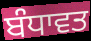
ਬੰਧਾਵਤ